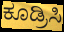
ಕೂಡ್ರಿಸಿ